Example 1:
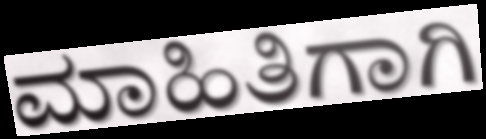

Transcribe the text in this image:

ಮಾಹಿತಿಗಾಗಿ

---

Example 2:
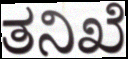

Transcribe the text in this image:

ತನಿಖೆ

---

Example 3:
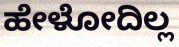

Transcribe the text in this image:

ಹೇಳೋದಿಲ್ಲ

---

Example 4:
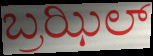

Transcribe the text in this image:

ಬ್ರಝಿಲ್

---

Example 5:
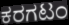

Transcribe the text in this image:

ಕರಗಟಂ